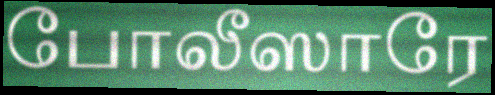
போலீஸாரே